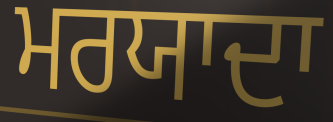
ਮਰਯਾਦਾ